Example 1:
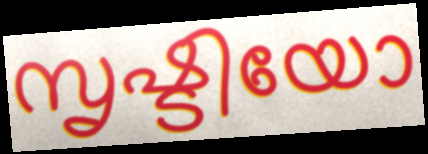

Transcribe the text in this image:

സൃഷ്ടിയോ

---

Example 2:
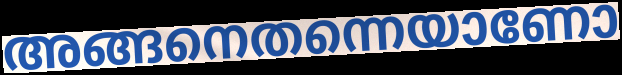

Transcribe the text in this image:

അങ്ങനെതന്നെയാണോ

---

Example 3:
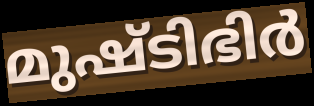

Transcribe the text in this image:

മുഷ്ടിഭിർ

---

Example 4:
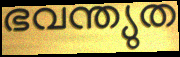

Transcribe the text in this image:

ഭവന്ത്യുത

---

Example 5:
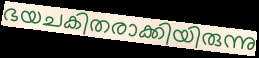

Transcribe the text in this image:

ഭയചകിതരാക്കിയിരുന്നു